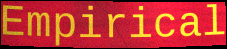
Empirical